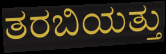
ತರಬಿಯತ್ತು